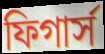
ফিগার্স